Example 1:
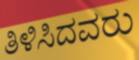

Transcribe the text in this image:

ತಿಳಿಸಿದವರು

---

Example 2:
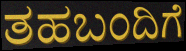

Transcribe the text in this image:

ತಹಬಂದಿಗೆ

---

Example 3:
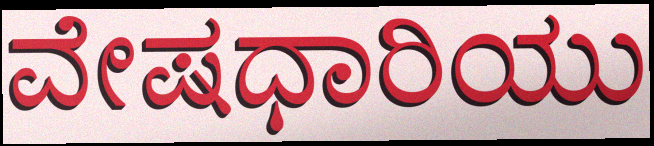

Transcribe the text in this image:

ವೇಷಧಾರಿಯು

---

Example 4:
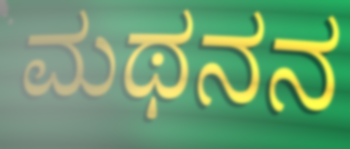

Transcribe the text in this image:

ಮಥನನ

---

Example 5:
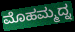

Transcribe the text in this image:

ಮೊಹಮ್ಮದ್ನ